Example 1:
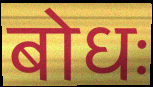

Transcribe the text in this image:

बोधः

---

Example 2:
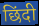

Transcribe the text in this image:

छिंदी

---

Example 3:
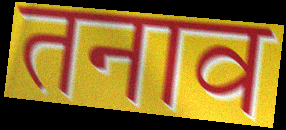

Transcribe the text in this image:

तनाव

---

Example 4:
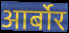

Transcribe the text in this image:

आर्बोर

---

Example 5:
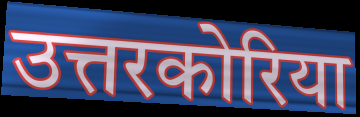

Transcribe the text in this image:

उत्तरकोरिया